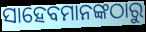
ସାହେବମାନଙ୍କଠାରୁ